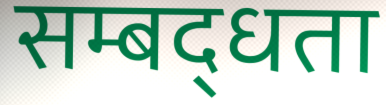
सम्‍बद्धता